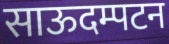
साऊदम्पटन